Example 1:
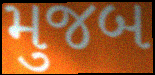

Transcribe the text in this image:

મુજબ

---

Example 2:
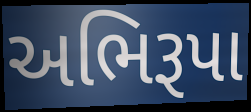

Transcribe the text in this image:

અભિરૂપા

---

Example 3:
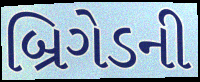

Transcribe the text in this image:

બ્રિગેડની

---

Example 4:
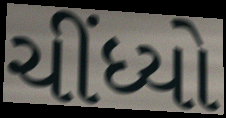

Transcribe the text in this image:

ચીંધ્યો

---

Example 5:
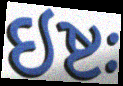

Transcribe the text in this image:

ઇષ્ટઃ